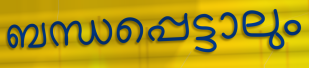
ബന്ധപ്പെട്ടാലും